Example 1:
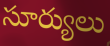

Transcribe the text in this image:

సూర్యులు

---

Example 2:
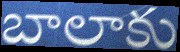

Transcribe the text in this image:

బాలాకు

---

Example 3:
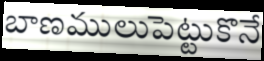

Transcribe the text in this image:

బాణములుపెట్టుకొనే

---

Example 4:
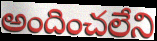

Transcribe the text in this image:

అందించలేని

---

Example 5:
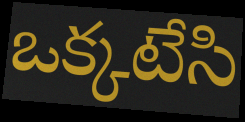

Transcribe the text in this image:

ఒక్కటేసి